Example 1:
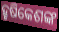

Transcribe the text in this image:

ହୃଷିକେଶଙ୍କ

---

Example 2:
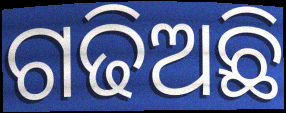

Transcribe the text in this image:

ଗଢିଅଛି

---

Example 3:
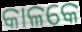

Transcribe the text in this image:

କାଳକେ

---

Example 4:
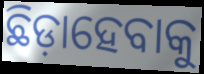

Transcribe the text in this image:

ଛିଡ଼ାହେବାକୁ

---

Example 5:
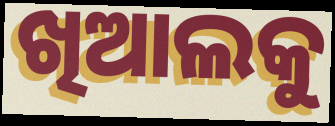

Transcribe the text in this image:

ଖିଆଲକୁ